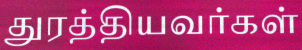
துரத்தியவர்கள்